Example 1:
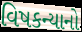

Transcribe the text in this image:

વિષકન્યાનો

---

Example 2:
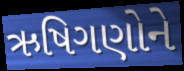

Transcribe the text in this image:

ઋષિગણોને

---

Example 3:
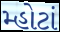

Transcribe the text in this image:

મ્હોટાં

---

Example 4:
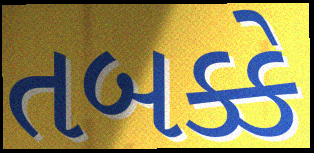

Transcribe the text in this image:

તબક્કે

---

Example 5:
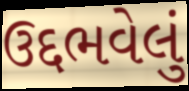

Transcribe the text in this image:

ઉદ્દભવેલું